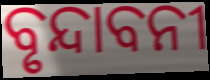
ବୃନ୍ଦାବନୀ